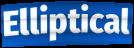
Elliptical